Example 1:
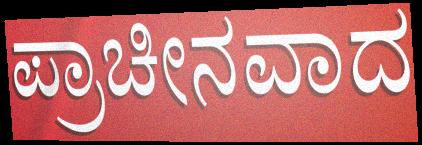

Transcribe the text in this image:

ಪ್ರಾಚೀನವಾದ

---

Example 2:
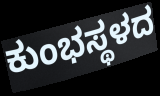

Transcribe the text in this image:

ಕುಂಭಸ್ಥಳದ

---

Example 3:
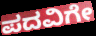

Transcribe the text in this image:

ಪದವಿಗೇ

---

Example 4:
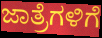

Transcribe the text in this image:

ಜಾತ್ರೆಗಳಿಗೆ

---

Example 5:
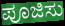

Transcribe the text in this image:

ಪೂಜಿಸು